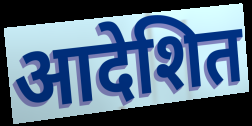
आदेशित